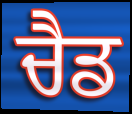
ਚੈਡ